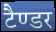
टैण्डर